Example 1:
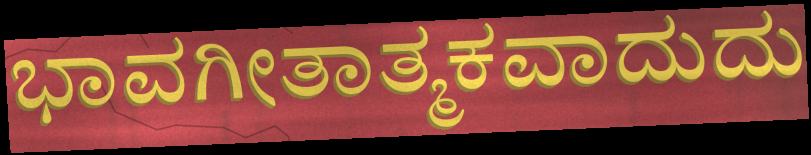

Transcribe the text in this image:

ಭಾವಗೀತಾತ್ಮಕವಾದುದು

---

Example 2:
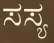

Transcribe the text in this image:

ಸಸ್ಯ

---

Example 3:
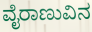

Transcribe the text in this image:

ವೈರಾಣುವಿನ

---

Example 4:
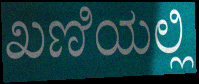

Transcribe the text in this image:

ಖಣಿಯಲ್ಲಿ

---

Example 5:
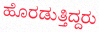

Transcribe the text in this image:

ಹೊರಡುತ್ತಿದ್ದರು